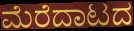
ಮೆರೆದಾಟದ